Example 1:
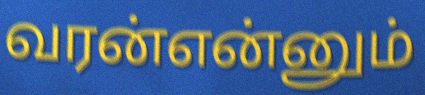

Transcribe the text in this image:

வரன்என்னும்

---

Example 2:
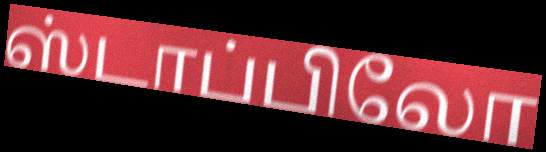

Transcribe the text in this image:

ஸ்டாப்பிலோ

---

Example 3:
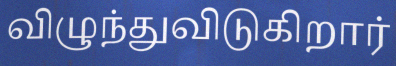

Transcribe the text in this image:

விழுந்துவிடுகிறார்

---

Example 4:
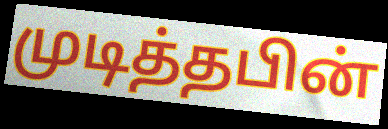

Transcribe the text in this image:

முடித்தபின்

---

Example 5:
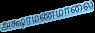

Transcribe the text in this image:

அக்ஷரமணமாலை